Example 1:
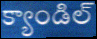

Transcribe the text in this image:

క్యాండిల్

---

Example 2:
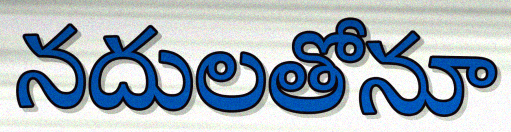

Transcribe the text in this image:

నదులతోనూ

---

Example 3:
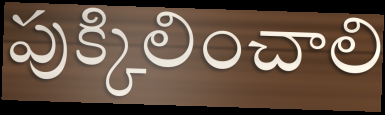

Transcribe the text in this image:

పుక్కిలించాలి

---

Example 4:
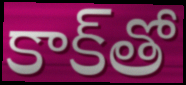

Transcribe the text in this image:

కాక్‌తో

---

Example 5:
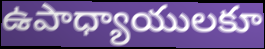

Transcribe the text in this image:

ఉపాధ్యాయులకూ